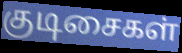
குடிசைகள்